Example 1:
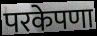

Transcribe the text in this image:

परकेपणा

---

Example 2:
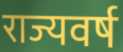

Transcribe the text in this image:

राज्यवर्ष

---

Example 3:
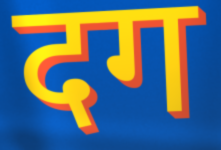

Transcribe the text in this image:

दग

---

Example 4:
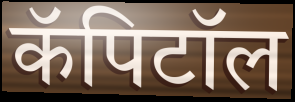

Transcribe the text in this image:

कॅपिटॉल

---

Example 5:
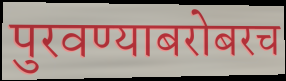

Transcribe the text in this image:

पुरवण्याबरोबरच